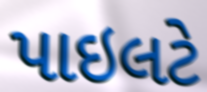
પાઇલટે